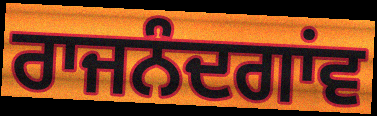
ਰਾਜਨੰਦਗਾਂਵ